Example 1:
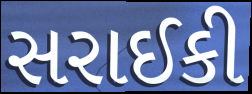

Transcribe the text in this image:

સરાઈકી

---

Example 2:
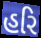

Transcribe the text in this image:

હરિ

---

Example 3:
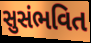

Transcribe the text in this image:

સુસંભવિત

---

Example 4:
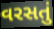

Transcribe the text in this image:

વરસતું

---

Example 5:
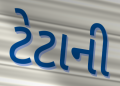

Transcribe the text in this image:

ટેટાની